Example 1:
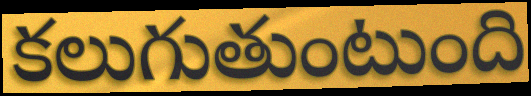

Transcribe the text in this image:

కలుగుతుంటుంది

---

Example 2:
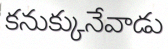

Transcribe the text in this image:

కనుక్కునేవాడు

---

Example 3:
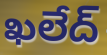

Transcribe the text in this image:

ఖలేద్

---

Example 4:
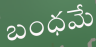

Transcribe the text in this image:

బంధమే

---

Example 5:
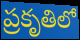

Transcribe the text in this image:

ప్రకృతిలో